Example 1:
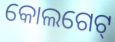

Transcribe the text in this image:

କୋଲଗେଟ୍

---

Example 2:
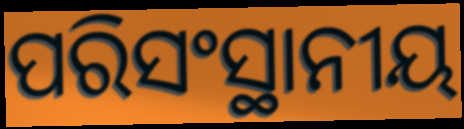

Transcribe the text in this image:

ପରିସଂସ୍ଥାନୀୟ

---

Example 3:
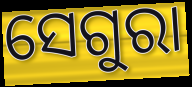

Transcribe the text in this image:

ସେଗୁରା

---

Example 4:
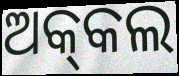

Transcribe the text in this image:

ଅକ୍‌କଲ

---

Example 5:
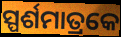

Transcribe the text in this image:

ସ୍ପର୍ଶମାତ୍ରକେ